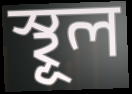
স্থূল